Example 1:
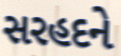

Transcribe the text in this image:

સરહદને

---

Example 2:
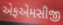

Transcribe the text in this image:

એફએમસીજી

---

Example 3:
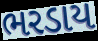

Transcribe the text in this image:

ભરડાય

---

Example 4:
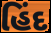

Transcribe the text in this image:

હિંદ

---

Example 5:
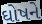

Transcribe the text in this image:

ઘોષને